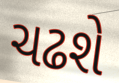
ચઢશે